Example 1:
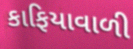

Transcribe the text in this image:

કાફિયાવાળી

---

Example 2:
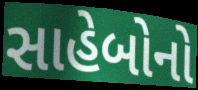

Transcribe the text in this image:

સાહેબોનો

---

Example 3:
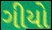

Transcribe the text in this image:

ગીયો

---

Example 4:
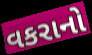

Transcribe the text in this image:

વકરાનો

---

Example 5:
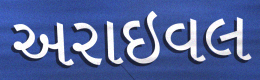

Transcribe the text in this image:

અરાઇવલ